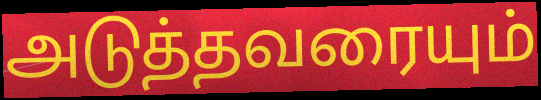
அடுத்தவரையும்